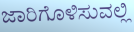
ಜಾರಿಗೊಳಿಸುವಲ್ಲಿ